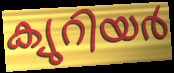
ക്യുറിയർ